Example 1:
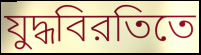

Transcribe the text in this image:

যুদ্ধবিরতিতে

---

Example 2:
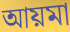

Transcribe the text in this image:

আয়মা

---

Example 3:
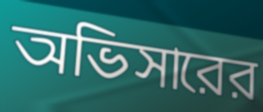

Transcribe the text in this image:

অভিসারের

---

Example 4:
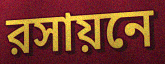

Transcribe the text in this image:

রসায়নে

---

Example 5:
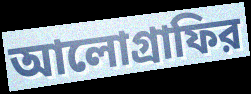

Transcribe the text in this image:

আলোগ্রাফির